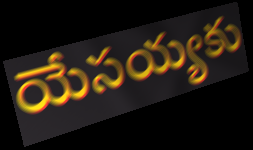
యేసయ్యకు